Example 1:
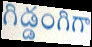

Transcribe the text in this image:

గిడ్డంగిగా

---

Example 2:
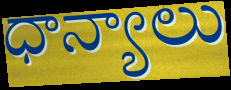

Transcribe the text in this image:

ధాన్యాలు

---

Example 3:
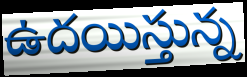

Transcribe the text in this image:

ఉదయిస్తున్న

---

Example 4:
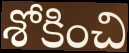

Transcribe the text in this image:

శోకించి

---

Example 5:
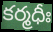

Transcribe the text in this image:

కర్మధీః